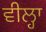
ਵੀਲ੍ਹਾ